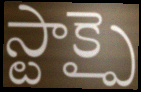
స్టాక్పై